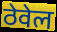
ठेवेल